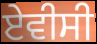
ਏਵੀਸੀ